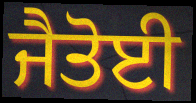
ਜੈਤੋਈ